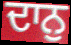
ਦਾਨੁ